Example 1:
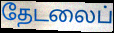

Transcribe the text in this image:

தேடலைப்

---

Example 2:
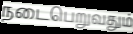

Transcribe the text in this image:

நடைபெறுவதும்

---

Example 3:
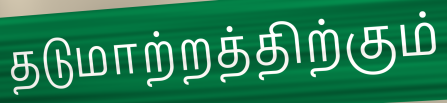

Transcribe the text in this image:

தடுமாற்றத்திற்கும்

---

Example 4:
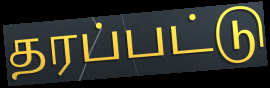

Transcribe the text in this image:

தரப்பட்டு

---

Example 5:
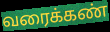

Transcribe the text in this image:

வரைக்கண்